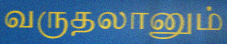
வருதலானும்